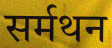
सर्मथन